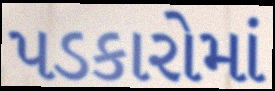
પડકારોમાં